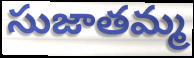
సుజాతమ్మ